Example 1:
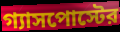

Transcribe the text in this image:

গ্যাসপোস্টের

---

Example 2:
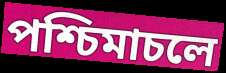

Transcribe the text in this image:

পশ্চিমাচলে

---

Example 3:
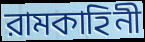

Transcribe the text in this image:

রামকাহিনী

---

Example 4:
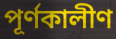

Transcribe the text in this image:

পূর্ণকালীণ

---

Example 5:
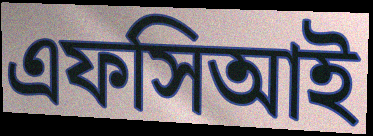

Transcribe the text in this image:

এফসিআই